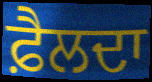
ਫ਼ੈਲਦਾ